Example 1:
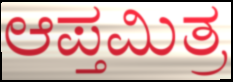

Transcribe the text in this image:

ಆಪ್ತಮಿತ್ರ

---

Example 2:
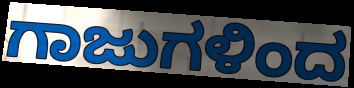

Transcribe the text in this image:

ಗಾಜುಗಳಿಂದ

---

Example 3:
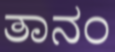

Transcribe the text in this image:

ತಾನಂ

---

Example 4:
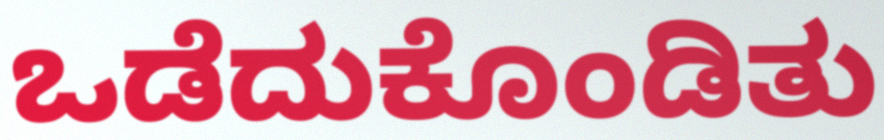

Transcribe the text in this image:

ಒಡೆದುಕೊಂಡಿತು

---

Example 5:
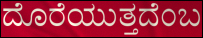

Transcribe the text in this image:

ದೊರೆಯುತ್ತದೆಂಬ